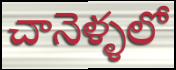
చానెళ్ళలో